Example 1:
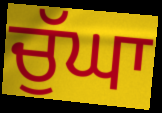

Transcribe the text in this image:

ਚੁੱਘਾ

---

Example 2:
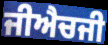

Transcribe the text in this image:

ਜੀਐਚਜੀ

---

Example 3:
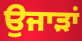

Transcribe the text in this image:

ਉਜਾੜਾਂ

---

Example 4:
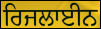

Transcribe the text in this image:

ਰਿਜਲਾਈਨ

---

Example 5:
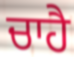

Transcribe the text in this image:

ਚਾਹੈ